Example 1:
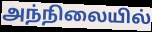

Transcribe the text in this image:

அந்நிலையில்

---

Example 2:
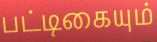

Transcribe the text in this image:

பட்டிகையும்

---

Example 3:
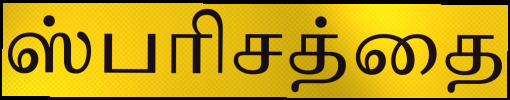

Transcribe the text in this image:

ஸ்பரிசத்தை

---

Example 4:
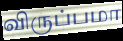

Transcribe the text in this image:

விருப்பமா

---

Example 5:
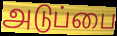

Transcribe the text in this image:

அடுப்பை